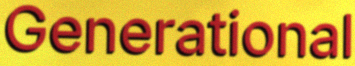
Generational